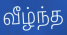
வீழ்ந்த